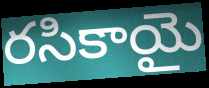
రసికాయై